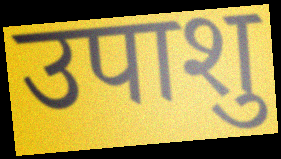
उपाशु